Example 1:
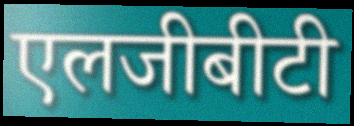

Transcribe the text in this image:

एलजीबीटी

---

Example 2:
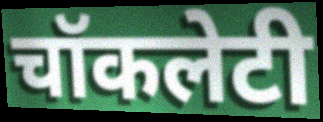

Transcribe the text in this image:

चॉकलेटी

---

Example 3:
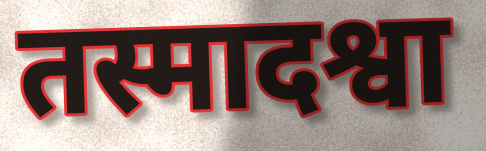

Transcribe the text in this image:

तस्मादश्वा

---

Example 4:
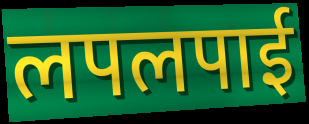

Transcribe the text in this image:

लपलपाई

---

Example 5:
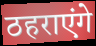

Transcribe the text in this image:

ठहराएंगे